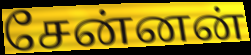
சேன்னன்